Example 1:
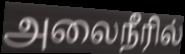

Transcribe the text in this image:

அலைநீரில்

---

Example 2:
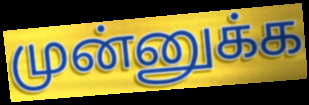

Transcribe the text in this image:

முன்னுக்க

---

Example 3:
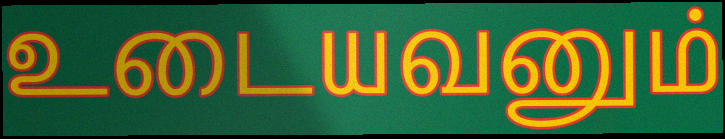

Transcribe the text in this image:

உடையவனும்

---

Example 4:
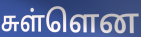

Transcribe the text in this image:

சுள்ளென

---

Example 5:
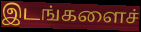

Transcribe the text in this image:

இடங்களைச்